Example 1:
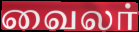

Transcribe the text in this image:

வைலர்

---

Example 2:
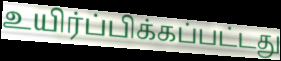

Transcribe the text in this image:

உயிர்ப்பிக்கப்பட்டது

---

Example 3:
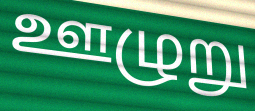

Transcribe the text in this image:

ஊழுறு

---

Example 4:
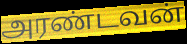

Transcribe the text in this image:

அரண்டவன்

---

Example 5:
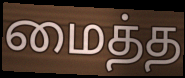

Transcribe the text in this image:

மைத்த